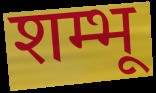
शम्भू